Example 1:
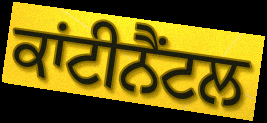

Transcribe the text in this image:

ਕਾਂਟੀਨੈਂਟਲ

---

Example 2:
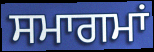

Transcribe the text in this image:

ਸਮਾਗਮਾਂ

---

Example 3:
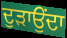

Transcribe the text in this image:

ਦੁੜਾਉਂਦਾ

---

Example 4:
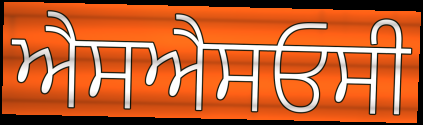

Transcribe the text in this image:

ਐਸਐਸਓਸੀ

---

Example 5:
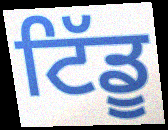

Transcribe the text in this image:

ਟਿੱਡੂ